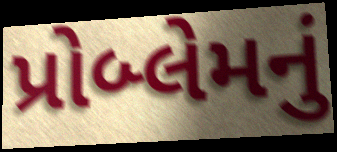
પ્રોબ્લેમનું